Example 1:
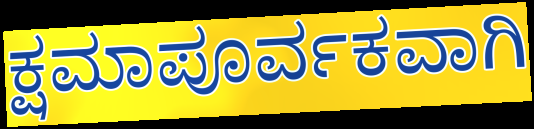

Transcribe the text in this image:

ಕ್ಷಮಾಪೂರ್ವಕವಾಗಿ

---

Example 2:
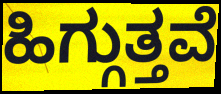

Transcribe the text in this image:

ಹಿಗ್ಗುತ್ತವೆ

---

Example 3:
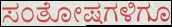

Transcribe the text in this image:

ಸಂತೋಷಗಳಿಗೂ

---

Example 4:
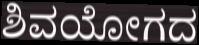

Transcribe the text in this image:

ಶಿವಯೋಗದ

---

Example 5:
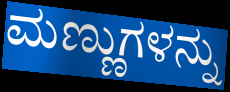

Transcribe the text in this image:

ಮಣ್ಣುಗಳನ್ನು